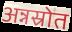
अन्नस्रोत